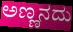
ಅಣ್ಣನದು